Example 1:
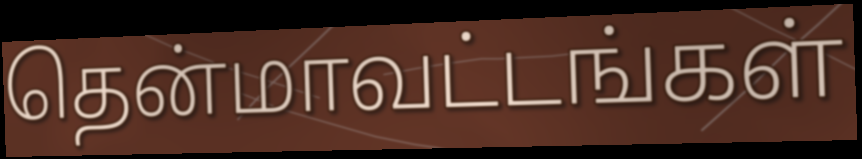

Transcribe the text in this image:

தென்மாவட்டங்கள்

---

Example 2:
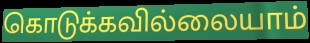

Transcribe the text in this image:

கொடுக்கவில்லையாம்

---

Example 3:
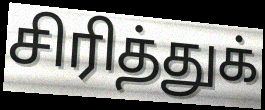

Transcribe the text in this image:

சிரித்துக்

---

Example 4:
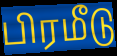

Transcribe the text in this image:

பிரமீடு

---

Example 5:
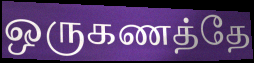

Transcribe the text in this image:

ஒருகணத்தே